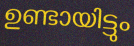
ഉണ്ടായിട്ടും